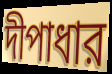
দীপাধার